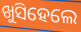
ଖୁସିହେଲେ